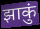
झाकुं